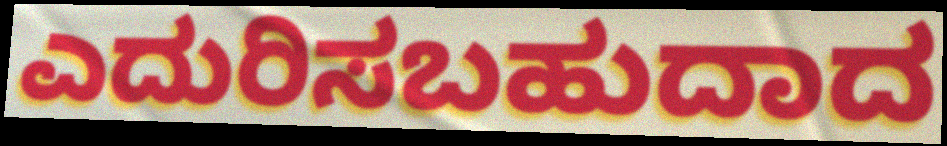
ಎದುರಿಸಬಹುದಾದ